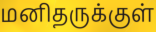
மனிதருக்குள்